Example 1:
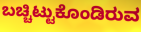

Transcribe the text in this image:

ಬಚ್ಚಿಟ್ಟುಕೊಂಡಿರುವ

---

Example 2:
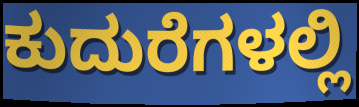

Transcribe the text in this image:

ಕುದುರೆಗಳಲ್ಲಿ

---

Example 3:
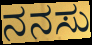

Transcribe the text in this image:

ನನಸು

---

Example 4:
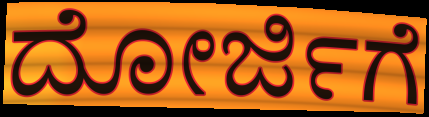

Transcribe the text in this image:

ದೋರ್ಜಿಗೆ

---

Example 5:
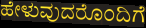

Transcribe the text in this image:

ಹೇಳುವುದರೊಂದಿಗೆ